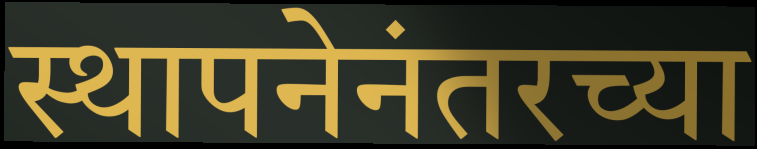
स्थापनेनंतरच्या